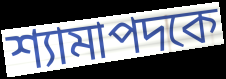
শ্যামাপদকে